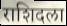
राशिदला